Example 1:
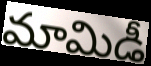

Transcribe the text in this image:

మామిడీ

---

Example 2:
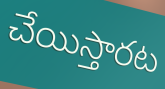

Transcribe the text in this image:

చేయిస్తారట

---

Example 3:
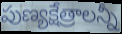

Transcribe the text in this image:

పుణ్యక్షేత్రాలన్నీ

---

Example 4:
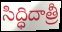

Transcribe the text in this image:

సిద్ధిదాత్రీ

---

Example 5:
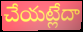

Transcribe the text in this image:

చేయట్లేదా